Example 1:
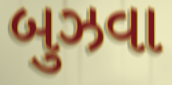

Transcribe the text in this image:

બુઝવા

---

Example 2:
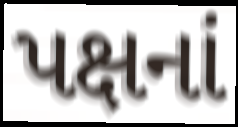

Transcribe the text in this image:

પક્ષનાં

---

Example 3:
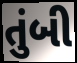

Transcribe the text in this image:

તુંબી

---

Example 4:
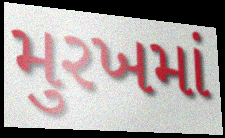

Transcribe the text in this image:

મુરખમાં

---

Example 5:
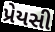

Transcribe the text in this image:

પ્રેયસી